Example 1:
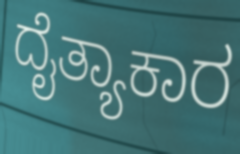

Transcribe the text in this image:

ದೈತ್ಯಾಕಾರ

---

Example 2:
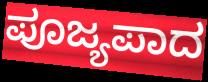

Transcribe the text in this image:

ಪೂಜ್ಯಪಾದ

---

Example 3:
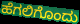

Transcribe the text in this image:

ಹೆಗಲಿಗೊಂದು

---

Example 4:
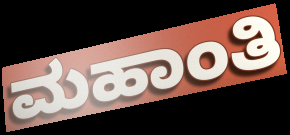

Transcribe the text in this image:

ಮಹಾಂತಿ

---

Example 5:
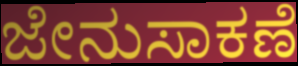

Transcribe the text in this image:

ಜೇನುಸಾಕಣೆ